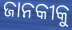
ଜାନକୀକୁ